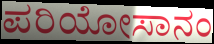
ಪರಿಯೋಸಾನಂ